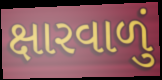
ક્ષારવાળું